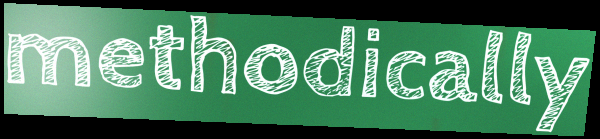
methodically